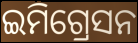
ଇମିଗ୍ରେସନ